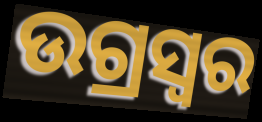
ଉଗ୍ରସ୍ୱର